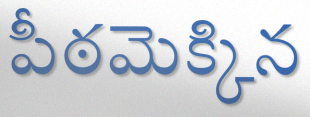
పీఠమెక్కిన